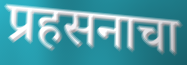
प्रहसनाचा